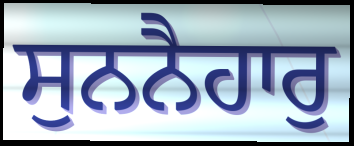
ਸੁਨਨੈਹਾਰੁ